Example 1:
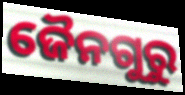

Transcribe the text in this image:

ଜୈନଗୁରୁ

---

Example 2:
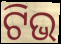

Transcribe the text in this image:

ଟିଭ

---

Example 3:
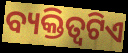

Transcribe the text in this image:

ବ୍ୟକ୍ତିତ୍ବଟିଏ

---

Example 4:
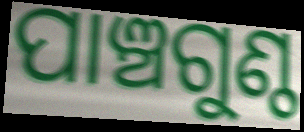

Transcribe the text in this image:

ପାଞ୍ଚଗୁଣ୍ଠ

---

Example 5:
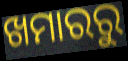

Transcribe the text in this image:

ଖମାରରୁ